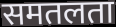
समतलता